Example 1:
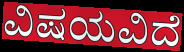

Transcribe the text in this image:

ವಿಷಯವಿದೆ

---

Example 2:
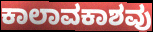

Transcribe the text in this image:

ಕಾಲಾವಕಾಶವು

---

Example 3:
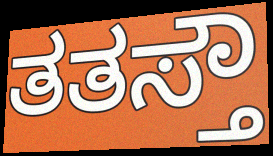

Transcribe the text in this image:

ತತಸ್ತೌ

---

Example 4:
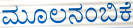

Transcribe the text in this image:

ಮೂಲನಂಬಿಕೆ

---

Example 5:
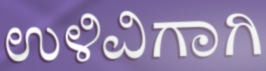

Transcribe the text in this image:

ಉಳಿವಿಗಾಗಿ